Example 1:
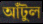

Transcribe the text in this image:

আঁটুল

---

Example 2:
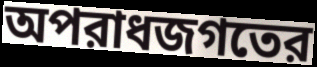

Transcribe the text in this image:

অপরাধজগতের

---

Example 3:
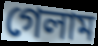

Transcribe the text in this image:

গেলাম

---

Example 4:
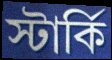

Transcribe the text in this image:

স্টার্কি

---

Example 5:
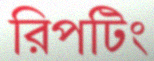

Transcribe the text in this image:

রিপটিং